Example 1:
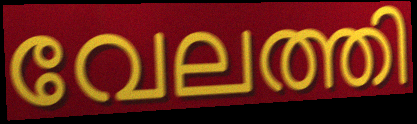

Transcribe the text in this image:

വേലത്തി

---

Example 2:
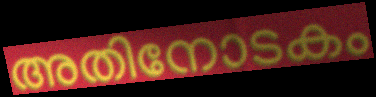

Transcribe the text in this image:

അതിനോടകം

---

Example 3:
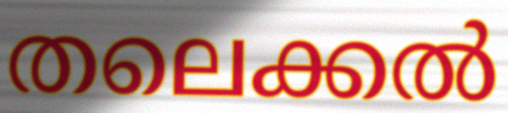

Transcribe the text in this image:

തലെക്കൽ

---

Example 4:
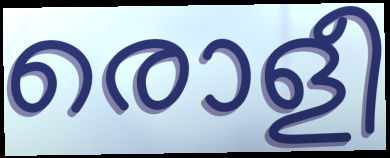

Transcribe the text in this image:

രൊളീ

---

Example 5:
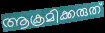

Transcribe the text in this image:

ആക്രമിക്കരുത്